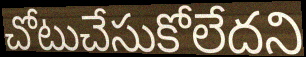
చోటుచేసుకోలేదని